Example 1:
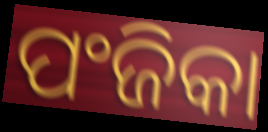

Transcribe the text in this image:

ପଂଜିକା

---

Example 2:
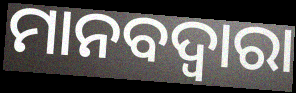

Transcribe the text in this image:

ମାନବଦ୍ୱାରା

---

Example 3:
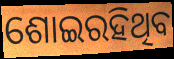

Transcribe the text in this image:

ଶୋଇରହିଥିବ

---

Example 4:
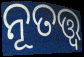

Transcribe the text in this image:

ନୂତତ୍ତ୍ବ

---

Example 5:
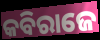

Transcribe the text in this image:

କବିରାଜେ